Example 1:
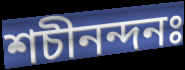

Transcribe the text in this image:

শচীনন্দনঃ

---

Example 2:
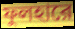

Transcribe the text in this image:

ফুলহারে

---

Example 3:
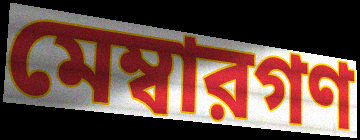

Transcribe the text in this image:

মেম্বারগণ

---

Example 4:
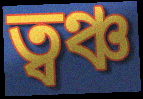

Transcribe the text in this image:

ত্বঞ্চ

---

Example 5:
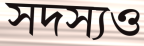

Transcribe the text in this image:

সদস্যও